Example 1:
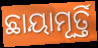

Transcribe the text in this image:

ଛାୟାମୂର୍ତ୍ତି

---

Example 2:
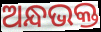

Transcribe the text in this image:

ଅନ୍ଧଭକ୍ତ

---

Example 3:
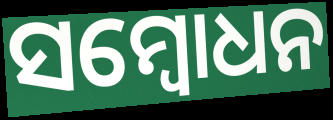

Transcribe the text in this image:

ସମ୍ବୋଧନ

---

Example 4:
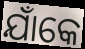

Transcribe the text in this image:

ଯାଁକେ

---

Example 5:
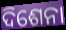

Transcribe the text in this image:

ଦିଶେନା